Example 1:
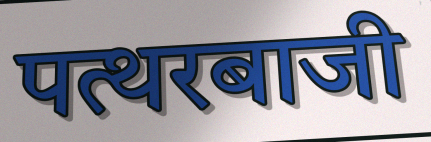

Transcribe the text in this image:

पत्थरबाजी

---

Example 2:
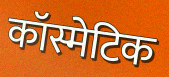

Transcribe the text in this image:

कॉस्मेटिक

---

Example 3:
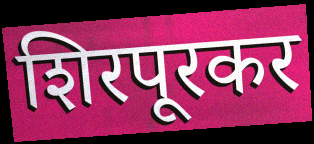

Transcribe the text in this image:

शिरपूरकर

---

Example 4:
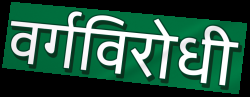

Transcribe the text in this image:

वर्गविरोधी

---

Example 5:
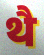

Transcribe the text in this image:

थै